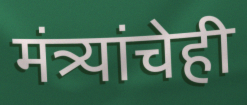
मंत्र्यांचेही